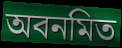
অবনমিত